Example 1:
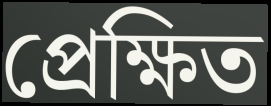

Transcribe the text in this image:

প্রেক্ষিত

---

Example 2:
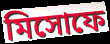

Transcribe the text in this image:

মিসোফে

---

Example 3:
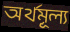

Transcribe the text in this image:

অর্থমূল্য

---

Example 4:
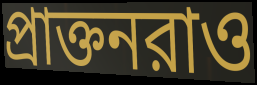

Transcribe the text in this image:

প্রাক্তনরাও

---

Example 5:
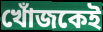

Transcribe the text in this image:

খোঁজকেই